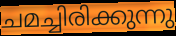
ചമച്ചിരിക്കുന്നു